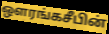
ஔரங்கசீபின்